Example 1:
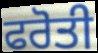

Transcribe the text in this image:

ਫਰੋਤੀ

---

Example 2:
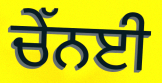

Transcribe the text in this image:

ਚੇੱਨਈ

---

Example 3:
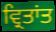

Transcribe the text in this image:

ਵ੍ਰਿਤਾਂਤ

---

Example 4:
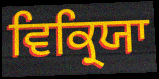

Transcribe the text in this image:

ਵਿਕ੍ਰਿਯਾ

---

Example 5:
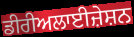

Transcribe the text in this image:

ਡੀਰੀਅਲਾਈਜ਼ੇਸ਼ਨ